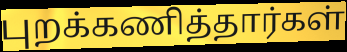
புறக்கணித்தார்கள்